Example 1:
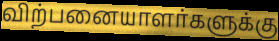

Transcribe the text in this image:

விற்பனையாளர்களுக்கு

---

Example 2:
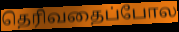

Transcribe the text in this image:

தெரிவதைப்போல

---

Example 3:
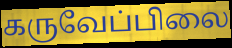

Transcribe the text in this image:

கருவேப்பிலை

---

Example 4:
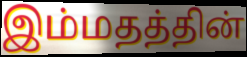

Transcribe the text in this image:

இம்மதத்தின்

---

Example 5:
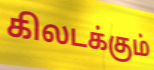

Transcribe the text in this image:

கிலடக்கும்